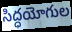
సిద్ధయోగుల